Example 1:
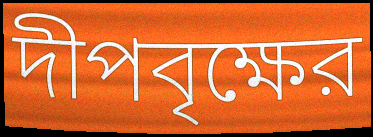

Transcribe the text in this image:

দীপবৃক্ষের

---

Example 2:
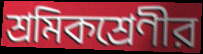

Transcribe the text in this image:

শ্রমিকশ্রেণীর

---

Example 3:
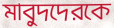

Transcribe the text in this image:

মাবুদদেরকে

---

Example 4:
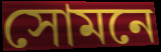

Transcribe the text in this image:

সোমনে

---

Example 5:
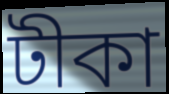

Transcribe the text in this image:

টীকা